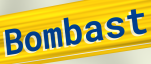
Bombast